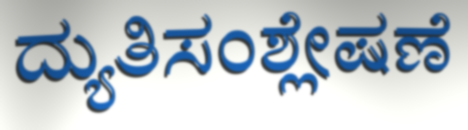
ದ್ಯುತಿಸಂಶ್ಲೇಷಣೆ